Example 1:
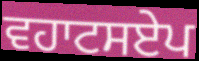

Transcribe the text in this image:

ਵਹਾਟਸਏਪ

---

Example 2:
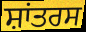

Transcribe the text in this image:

ਸ਼ਾਂਤਰਸ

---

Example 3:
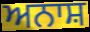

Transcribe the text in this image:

ਅਨਾਸ਼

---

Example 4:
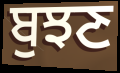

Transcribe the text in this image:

ਬੁਝਣ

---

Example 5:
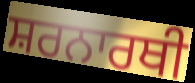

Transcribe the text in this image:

ਸ਼ਰਨਾਰਥੀ